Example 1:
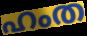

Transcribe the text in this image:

ഹംത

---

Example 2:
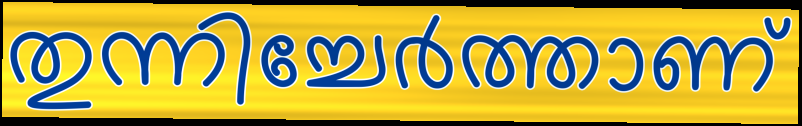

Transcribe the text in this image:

തുന്നിച്ചേർത്താണ്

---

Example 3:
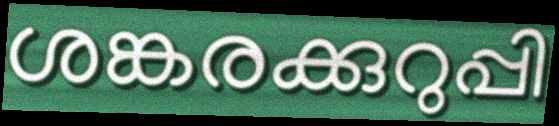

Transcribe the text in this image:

ശങ്കരക്കുറുപ്പി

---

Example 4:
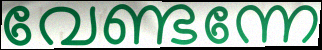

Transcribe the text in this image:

വേണ്ടന്നേ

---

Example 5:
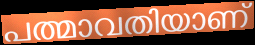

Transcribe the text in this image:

പത്മാവതിയാണ്